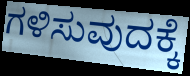
ಗಳಿಸುವುದಕ್ಕೆ